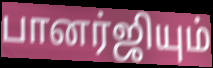
பானர்ஜியும்